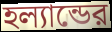
হল্যান্ডের